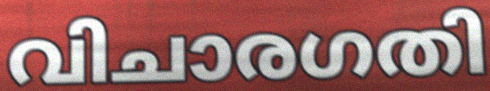
വിചാരഗതി